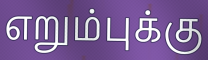
எறும்புக்கு